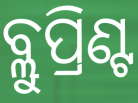
ବ୍ଲୁପ୍ରିଣ୍ଟ